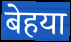
बेहया